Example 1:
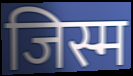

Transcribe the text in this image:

जिस्म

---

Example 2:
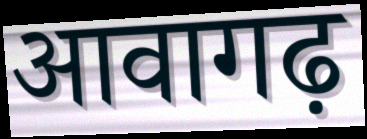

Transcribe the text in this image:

आवागढ़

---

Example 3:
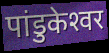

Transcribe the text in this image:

पांडुकेश्वर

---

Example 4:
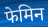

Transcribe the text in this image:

फेमिन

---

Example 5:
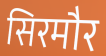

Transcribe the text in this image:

सिरमौर